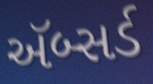
ઍબ્સર્ડ